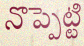
నొప్పెట్టి